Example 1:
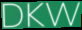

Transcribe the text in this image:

DKW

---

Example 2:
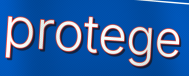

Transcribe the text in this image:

protege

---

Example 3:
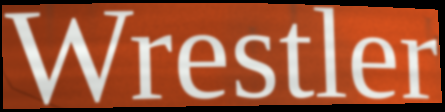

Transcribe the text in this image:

Wrestler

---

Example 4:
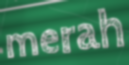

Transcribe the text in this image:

merah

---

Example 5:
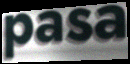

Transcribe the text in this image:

pasa